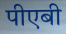
पीएबी